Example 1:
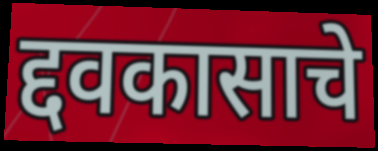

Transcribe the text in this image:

द्दवकासाचे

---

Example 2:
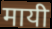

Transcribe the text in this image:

मायी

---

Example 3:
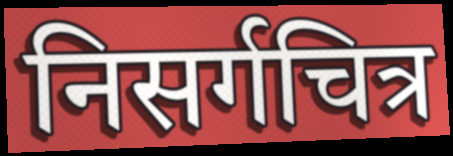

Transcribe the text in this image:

निसर्गचित्र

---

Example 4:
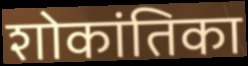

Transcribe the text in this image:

शोकांतिका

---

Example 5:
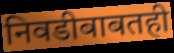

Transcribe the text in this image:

निवडीबाबतही